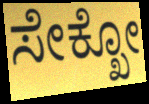
ಸೇಕ್ಖೋ